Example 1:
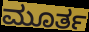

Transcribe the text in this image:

ಮೂರ್ತ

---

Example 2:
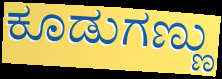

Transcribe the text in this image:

ಕೂಡುಗಣ್ಣು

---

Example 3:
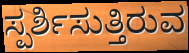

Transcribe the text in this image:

ಸ್ಪರ್ಶಿಸುತ್ತಿರುವ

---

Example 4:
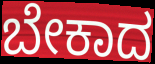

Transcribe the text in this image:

ಬೇಕಾದ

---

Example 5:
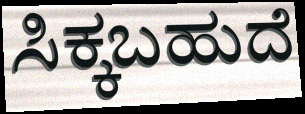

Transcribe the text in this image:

ಸಿಕ್ಕಬಹುದೆ